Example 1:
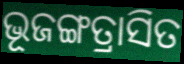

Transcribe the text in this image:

ଭୂଜଙ୍ଗତ୍ରାସିତ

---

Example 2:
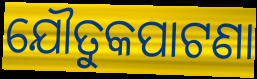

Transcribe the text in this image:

ଯୌତୁକପାଟଣା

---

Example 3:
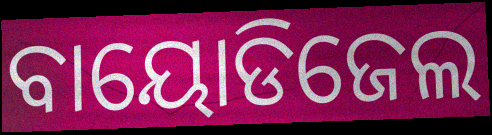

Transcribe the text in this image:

ବାୟୋଡିଜେଲ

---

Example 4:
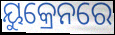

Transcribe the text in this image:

ୟୁକ୍ରେନରେ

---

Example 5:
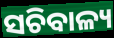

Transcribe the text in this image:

ସଚିବାଳ୍ୟ